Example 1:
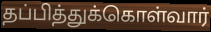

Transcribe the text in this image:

தப்பித்துக்கொள்வார்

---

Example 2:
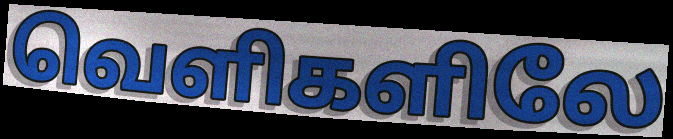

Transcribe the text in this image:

வெளிகளிலே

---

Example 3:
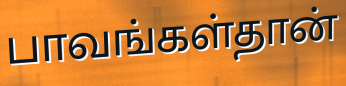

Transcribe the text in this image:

பாவங்கள்தான்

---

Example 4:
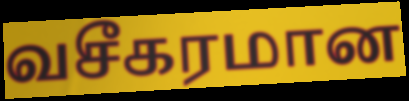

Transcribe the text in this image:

வசீகரமான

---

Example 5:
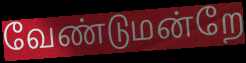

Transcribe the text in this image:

வேண்டுமன்றே